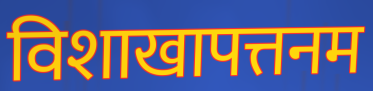
विशाखापत्तनम